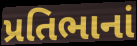
પ્રતિભાનાં